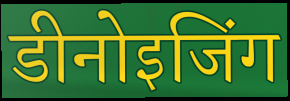
डीनोइजिंग